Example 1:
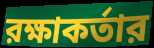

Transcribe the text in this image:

রক্ষাকর্তার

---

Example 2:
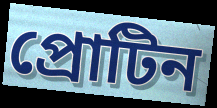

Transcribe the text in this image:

প্রোটিন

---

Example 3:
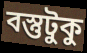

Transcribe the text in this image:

বস্তুটুকু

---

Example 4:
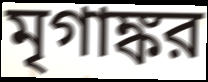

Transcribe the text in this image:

মৃগাঙ্কর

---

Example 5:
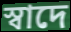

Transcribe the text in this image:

স্বাদে